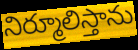
నిర్మూలిస్తాను